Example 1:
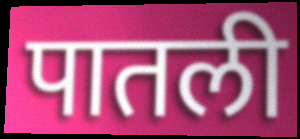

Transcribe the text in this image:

पातली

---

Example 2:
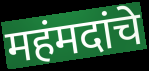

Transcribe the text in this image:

महंमदांचे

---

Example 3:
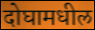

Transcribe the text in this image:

दोघामधील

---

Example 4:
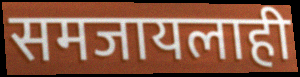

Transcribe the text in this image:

समजायलाही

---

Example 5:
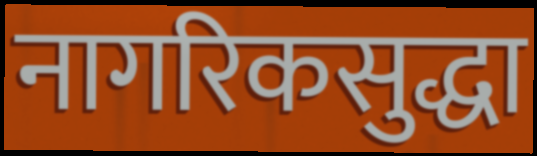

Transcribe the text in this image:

नागरिकसुद्धा